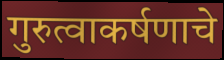
गुरुत्वाकर्षणाचे